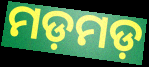
ମଡ଼ମଡ଼